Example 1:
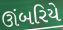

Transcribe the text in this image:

ઊંબરિયે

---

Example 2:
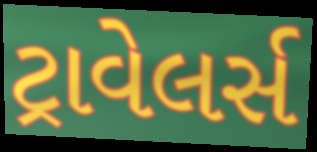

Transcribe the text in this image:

ટ્રાવેલર્સ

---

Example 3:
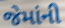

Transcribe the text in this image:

જેમાંની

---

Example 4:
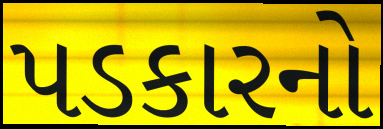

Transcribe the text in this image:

પડકારનો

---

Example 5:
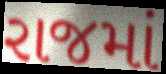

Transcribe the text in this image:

રાજમાં